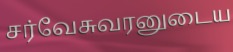
சர்வேசுவரனுடைய